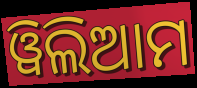
ୱିଲିଆମ